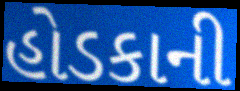
હોડકાની